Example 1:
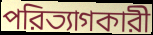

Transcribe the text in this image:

পরিত্যাগকারী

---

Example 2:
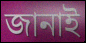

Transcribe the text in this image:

জানাই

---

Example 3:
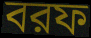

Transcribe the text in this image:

বরফ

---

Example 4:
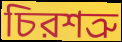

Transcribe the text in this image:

চিরশত্রু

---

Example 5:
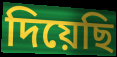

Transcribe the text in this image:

দিয়েছি